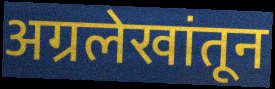
अग्रलेखांतून